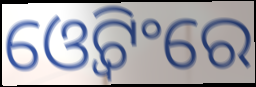
ଓ୍ୱେଟିଂରେ